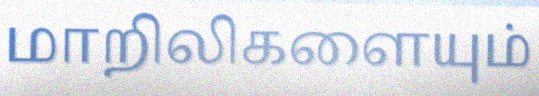
மாறிலிகளையும்